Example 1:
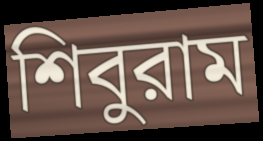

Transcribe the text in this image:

শিবুরাম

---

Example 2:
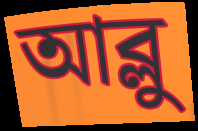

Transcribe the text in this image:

আব্লু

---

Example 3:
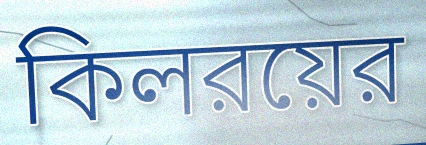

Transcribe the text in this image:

কিলরয়ের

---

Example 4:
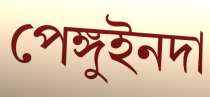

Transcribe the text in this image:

পেঙ্গুইনদা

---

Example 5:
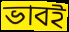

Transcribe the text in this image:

ভাবই